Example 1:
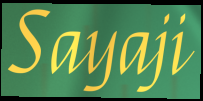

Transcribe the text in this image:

Sayaji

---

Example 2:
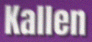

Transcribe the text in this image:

Kallen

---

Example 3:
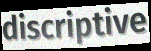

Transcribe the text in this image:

discriptive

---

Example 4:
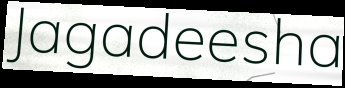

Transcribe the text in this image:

Jagadeesha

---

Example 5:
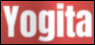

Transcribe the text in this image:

Yogita